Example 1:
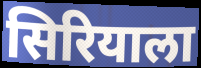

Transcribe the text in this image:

सिरियाला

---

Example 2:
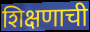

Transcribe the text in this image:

शिक्षणाची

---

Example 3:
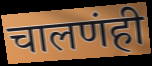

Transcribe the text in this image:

चालणंही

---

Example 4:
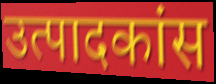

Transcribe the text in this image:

उत्पादकांस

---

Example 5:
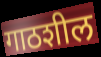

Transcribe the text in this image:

गाठशील